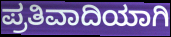
ಪ್ರತಿವಾದಿಯಾಗಿ